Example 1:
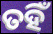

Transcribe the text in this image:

ତହିଁ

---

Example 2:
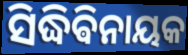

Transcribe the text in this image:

ସିଦ୍ଧିଵିନାୟକ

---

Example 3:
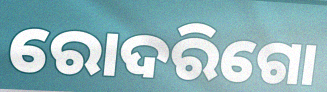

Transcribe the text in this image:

ରୋଦରିଗୋ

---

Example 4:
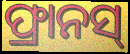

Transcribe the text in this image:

ଫ୍ରାନସ୍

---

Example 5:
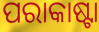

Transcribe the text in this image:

ପରାକାଷ୍ଟା